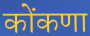
कोंकणा